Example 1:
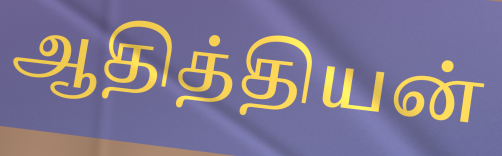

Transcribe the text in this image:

ஆதித்தியன்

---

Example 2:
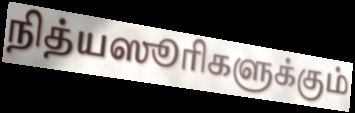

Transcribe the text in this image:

நித்யஸூரிகளுக்கும்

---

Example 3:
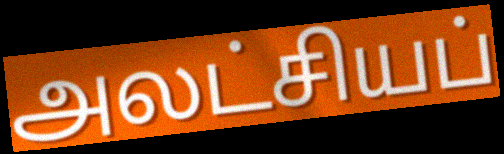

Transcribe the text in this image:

அலட்சியப்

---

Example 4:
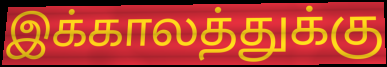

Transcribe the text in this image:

இக்காலத்துக்கு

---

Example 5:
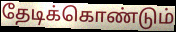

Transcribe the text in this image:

தேடிக்கொண்டும்